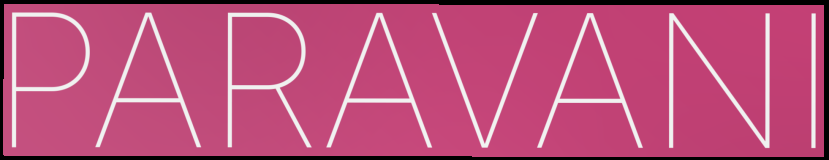
PARAVANI